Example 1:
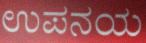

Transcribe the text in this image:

ಉಪನಯ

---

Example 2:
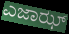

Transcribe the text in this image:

ಎಜಾಝ್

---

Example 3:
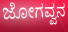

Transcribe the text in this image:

ಜೋಗವ್ವನ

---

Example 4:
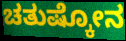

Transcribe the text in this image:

ಚತುಷ್ಕೋನ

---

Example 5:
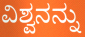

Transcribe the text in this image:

ವಿಶ್ವನನ್ನು